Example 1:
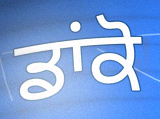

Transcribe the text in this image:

ਡਾਂਕੋ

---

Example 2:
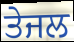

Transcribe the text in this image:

ਤੇਜਲ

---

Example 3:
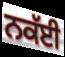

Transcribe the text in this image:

ਨਕੱਈ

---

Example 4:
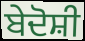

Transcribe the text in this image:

ਬੇਦੋਸ਼ੀ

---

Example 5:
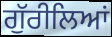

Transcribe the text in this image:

ਗੁੱਰੀਲਿਆਂ